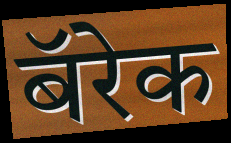
बॅरेक